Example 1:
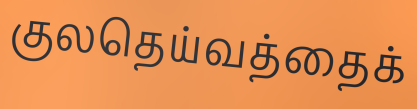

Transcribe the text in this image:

குலதெய்வத்தைக்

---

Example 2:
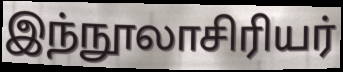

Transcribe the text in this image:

இந்நூலாசிரியர்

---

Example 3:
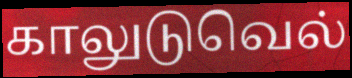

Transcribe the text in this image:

காலுடுவெல்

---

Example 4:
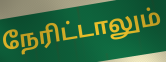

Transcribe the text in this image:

நேரிட்டாலும்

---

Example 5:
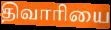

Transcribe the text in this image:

திவாரியை